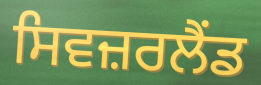
ਸਿਵਜ਼ਰਲੈਂਡ